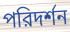
পরিদর্শন